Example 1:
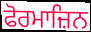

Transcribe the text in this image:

ਫੋਰਮਾਜ਼ਿਨ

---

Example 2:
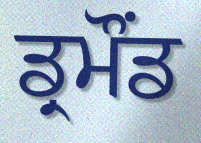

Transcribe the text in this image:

ਡ੍ਰਮੌਂਡ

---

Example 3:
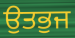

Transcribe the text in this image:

ਉਤਭੁਜ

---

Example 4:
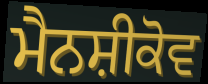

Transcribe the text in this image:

ਮੈਨਸ਼ੀਕੋਵ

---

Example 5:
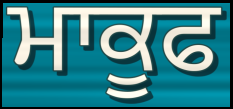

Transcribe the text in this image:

ਮਾਕੂਫ